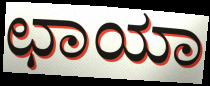
ಛಾಯಾ